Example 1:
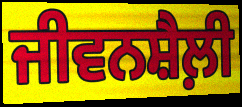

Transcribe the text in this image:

ਜੀਵਨਸ਼ੈਲ਼ੀ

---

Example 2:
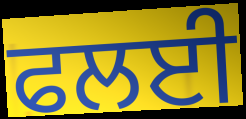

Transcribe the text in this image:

ਫਲਈ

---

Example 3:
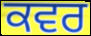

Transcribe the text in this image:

ਕਵਰ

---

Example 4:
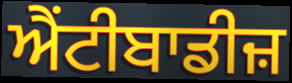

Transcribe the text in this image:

ਐਂਟੀਬਾਡੀਜ਼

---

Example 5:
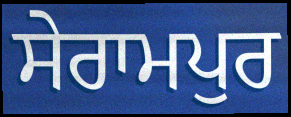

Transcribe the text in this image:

ਸੇਰਾਮਪੁਰ